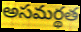
అసమర్థత